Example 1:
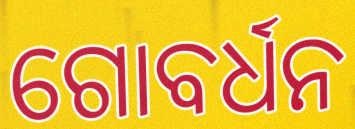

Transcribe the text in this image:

ଗୋବର୍ଧନ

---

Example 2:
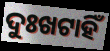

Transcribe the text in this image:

ଦୁଃଖଟାହିଁ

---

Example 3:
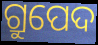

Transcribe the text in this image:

ଗ୍ରୁପେଦ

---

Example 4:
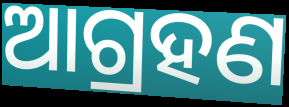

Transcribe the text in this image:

ଆଗ୍ରହଣ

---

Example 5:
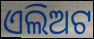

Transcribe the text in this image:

ଏଲିଅଟ